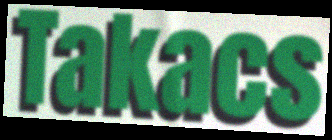
Takacs